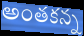
అంతకన్న